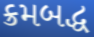
ક્રમબદ્ધ